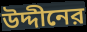
উদ্দীনের